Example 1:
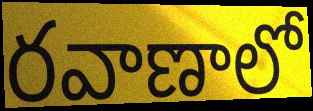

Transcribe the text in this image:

రవాణాలో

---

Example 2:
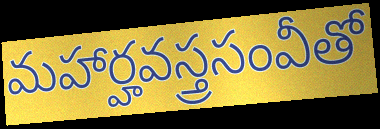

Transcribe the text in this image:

మహార్హవస్త్రసంవీతో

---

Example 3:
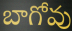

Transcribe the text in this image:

బాగోవు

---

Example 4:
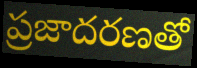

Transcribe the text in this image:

ప్రజాదరణతో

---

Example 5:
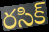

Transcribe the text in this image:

రసిక్